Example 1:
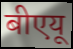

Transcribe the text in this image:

बीएयू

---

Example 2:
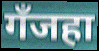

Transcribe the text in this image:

गँजहा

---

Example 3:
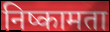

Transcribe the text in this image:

निष्कामता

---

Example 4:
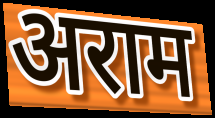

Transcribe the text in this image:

अराम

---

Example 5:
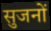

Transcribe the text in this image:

सुजनों